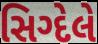
સિગ્દેલે